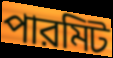
পারমিট